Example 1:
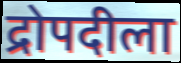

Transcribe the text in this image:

द्रोपदीला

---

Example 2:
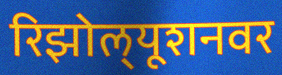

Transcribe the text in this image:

रिझोल्यूशनवर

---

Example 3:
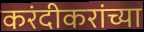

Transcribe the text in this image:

करंदीकरांच्या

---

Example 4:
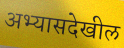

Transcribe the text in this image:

अभ्यासदेखील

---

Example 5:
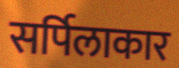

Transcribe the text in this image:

सर्पिलाकार